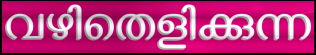
വഴിതെളിക്കുന്ന